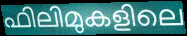
ഫിലിമുകളിലെ